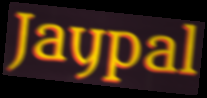
Jaypal